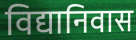
विद्यानिवास